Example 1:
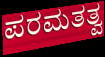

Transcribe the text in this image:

ಪರಮತತ್ವ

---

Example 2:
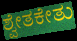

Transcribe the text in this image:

ಶ್ವೇತಕೇತು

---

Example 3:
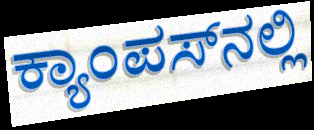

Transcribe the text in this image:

ಕ್ಯಾಂಪಸ್‌ನಲ್ಲಿ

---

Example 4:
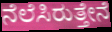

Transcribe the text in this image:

ನೆಲೆಸಿರುತ್ತೇನೆ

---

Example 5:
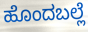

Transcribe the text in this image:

ಹೊಂದಬಲ್ಲೆ